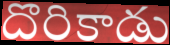
దొరికాడు